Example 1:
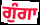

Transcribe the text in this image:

ਗੁੰਗਾ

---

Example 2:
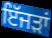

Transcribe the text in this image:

ਇੱਜੜਾਂ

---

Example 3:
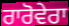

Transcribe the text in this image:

ਰਾਰੋਵੇਰਾ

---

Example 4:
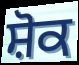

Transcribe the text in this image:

ਸ਼ੋਕ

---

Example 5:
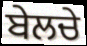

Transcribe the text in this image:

ਬੇਲਚੇ